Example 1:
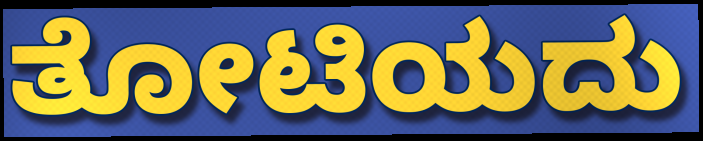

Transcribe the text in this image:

ತೋಟಿಯದು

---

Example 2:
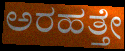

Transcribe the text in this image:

ಅರಹತ್ತೇ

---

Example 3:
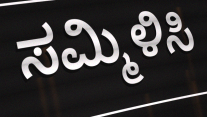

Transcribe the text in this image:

ಸಮ್ಮಿಳಿಸಿ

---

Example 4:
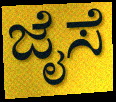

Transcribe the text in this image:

ಜೈಸೆ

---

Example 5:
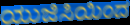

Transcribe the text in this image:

ಯುಜಿಸಿಯಿಂದ